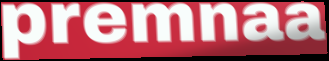
premnaa